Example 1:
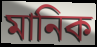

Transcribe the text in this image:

মানিক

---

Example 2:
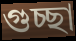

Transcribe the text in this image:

গুচ্ছা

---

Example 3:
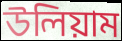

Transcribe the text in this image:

উলিয়াম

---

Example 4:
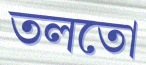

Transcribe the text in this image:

তলতো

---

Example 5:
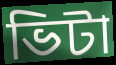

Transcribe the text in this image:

ভিটা